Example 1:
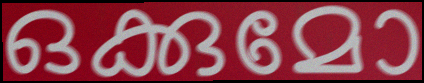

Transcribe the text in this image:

ഒക്കുമോ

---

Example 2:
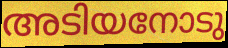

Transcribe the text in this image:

അടിയനോടു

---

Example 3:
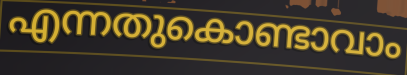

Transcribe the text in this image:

എന്നതുകൊണ്ടാവാം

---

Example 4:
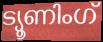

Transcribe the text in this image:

ട്യൂണിംഗ്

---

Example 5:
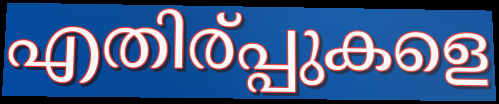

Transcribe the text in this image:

എതിര്പ്പുകളെ